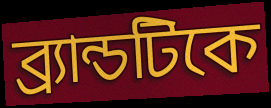
ব্র্যান্ডটিকে